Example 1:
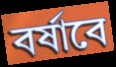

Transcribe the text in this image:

বর্ষাবে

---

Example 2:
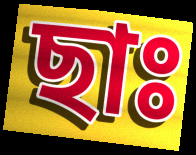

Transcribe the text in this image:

ছাঃ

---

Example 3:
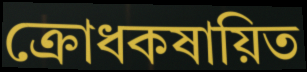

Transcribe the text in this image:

ক্রোধকষায়িত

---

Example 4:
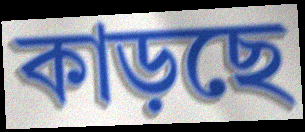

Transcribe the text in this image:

কাড়ছে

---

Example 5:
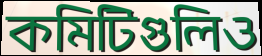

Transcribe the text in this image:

কমিটিগুলিও